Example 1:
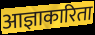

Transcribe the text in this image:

आज्ञाकारिता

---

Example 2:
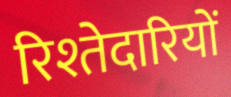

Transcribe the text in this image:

रिश्तेदारियों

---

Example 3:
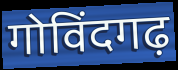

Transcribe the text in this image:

गोविंदगढ़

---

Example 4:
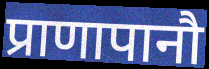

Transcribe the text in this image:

प्राणापानौ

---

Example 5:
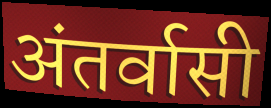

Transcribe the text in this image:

अंतर्वासी